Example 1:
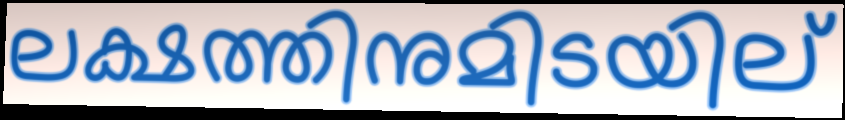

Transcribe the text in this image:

ലക്ഷത്തിനുമിടയില്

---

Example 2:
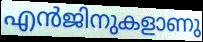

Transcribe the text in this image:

എൻജിനുകളാണു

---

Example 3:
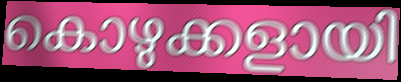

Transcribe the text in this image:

കൊഴുക്കളായി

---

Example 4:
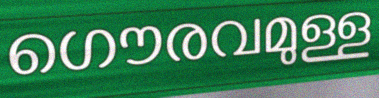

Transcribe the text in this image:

ഗൌരവമുള്ള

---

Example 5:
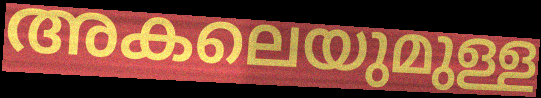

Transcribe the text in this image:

അകലെയുമുള്ള